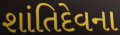
શાંતિદેવના